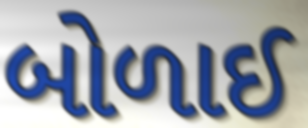
બોળાઈ